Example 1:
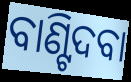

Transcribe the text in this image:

ବାଣ୍ଟିଦବା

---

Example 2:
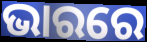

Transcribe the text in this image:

ଭାରରେ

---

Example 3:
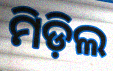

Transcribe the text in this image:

ମିଡ଼ିଲ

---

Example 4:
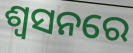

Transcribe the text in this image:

ଶ୍ଵସନରେ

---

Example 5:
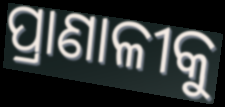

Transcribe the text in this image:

ପ୍ରାଣାଳୀକୁ